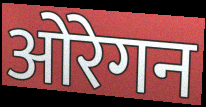
ओरेगन